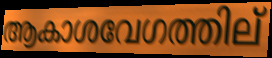
ആകാശവേഗത്തില്